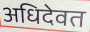
अधिदेवत